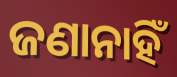
ଜଣାନାହିଁ